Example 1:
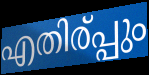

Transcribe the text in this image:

എതിര്പ്പും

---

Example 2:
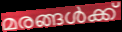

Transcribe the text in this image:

മരങ്ങൾക്ക്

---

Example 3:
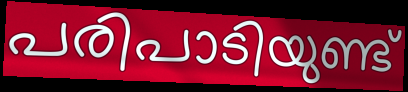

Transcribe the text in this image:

പരിപാടിയുണ്ട്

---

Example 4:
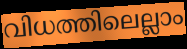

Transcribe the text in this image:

വിധത്തിലെല്ലാം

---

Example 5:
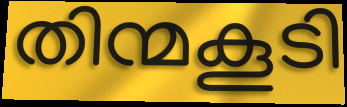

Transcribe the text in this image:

തിന്മകൂടി